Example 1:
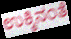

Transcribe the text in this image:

ಉಕ್ಕಿನಂತೆ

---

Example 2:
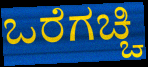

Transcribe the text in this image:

ಒರೆಗಚ್ಚಿ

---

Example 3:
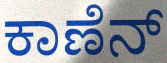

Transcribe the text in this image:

ಕಾಣೆನ್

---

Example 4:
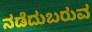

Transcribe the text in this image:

ನಡೆದುಬರುವ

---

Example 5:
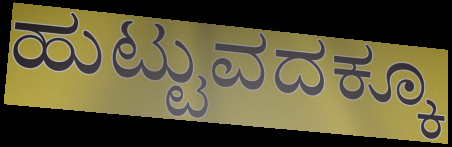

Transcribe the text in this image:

ಹುಟ್ಟುವದಕ್ಕೂ